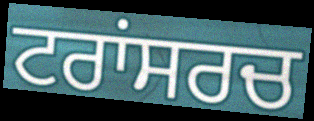
ਟਰਾਂਸਰਚ